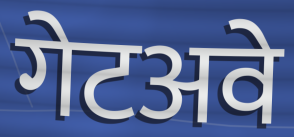
गेटअवे